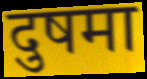
दुषमा